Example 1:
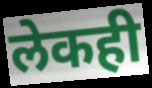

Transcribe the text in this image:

लेकही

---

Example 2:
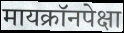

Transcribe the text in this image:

मायक्रॉनपेक्षा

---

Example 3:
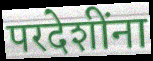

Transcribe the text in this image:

परदेशींना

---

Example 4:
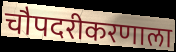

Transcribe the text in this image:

चौपदरीकरणाला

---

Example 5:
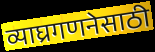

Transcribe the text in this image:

व्याघ्रगणनेसाठी